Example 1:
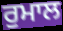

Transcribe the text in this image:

ਰੁਮਾਲ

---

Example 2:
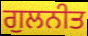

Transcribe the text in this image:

ਗੁਲਨੀਤ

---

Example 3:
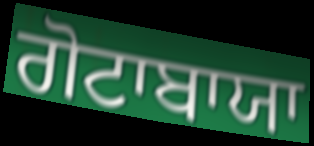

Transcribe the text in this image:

ਗੋਟਾਬਾਯਾ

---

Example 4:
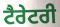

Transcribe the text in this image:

ਟੈਰੇਟਰੀ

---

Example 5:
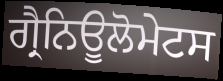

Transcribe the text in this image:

ਗ੍ਰੈਨਿਊਲੋਮੇਟਸ